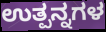
ಉತ್ಪನ್ನಗಳ